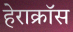
हेराक्रॉस